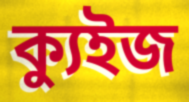
ক্যুইজ